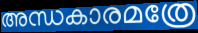
അന്ധകാരമത്രേ